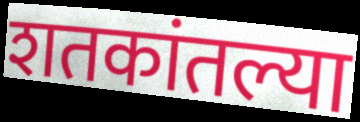
शतकांतल्या